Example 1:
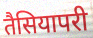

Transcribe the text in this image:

तैसियापरी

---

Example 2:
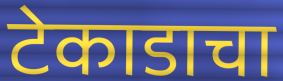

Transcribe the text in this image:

टेकाडाचा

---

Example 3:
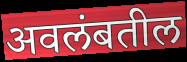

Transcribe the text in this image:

अवलंबतील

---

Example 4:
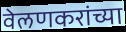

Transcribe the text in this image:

वेलणकरांच्या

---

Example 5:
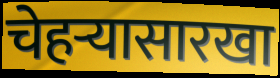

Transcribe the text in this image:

चेहऱ्यासारखा